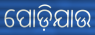
ପୋଡ଼ିଯାଉ